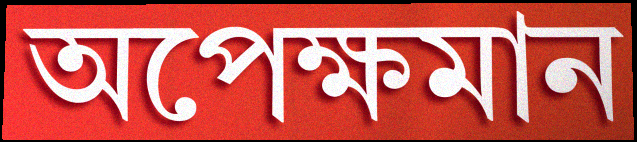
অপেক্ষমান